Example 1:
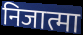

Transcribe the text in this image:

निजात्मा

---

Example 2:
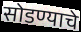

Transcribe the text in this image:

सोडण्याचे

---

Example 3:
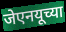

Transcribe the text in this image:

जेएनयूच्या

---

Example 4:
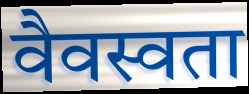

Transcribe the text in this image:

वैवस्वता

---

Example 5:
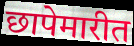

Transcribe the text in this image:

छापेमारीत